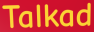
Talkad